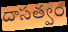
దాసత్వం